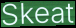
Skeat